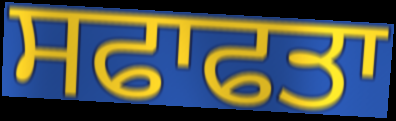
ਸਫਾਫਤਾ